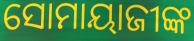
ସୋମାୟାଜୀଙ୍କ